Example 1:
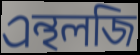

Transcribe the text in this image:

এন্থলজি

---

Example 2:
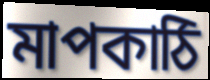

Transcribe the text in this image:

মাপকাঠি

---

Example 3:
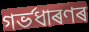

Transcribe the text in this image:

গৰ্ভধাৰণৰ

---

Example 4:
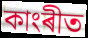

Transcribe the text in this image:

কাংৰীত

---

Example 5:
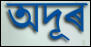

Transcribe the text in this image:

অদূৰ